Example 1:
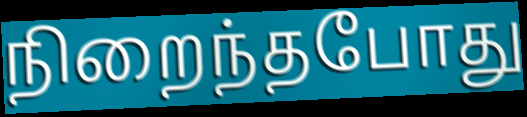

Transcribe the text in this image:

நிறைந்தபோது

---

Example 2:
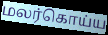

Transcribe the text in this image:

மலர்கொய்ய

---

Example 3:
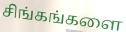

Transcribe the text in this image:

சிங்கங்களை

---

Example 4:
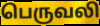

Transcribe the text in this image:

பெருவலி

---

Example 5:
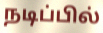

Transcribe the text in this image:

நடிப்பில்